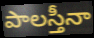
పాలస్తీనా